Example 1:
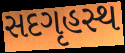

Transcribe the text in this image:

સદગૃહસ્થ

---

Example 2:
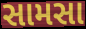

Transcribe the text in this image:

સામસા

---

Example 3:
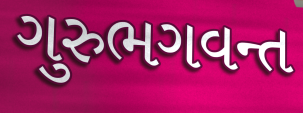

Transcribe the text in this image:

ગુરુભગવન્ત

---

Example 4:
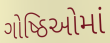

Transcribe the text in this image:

ગોષ્ઠિઓમાં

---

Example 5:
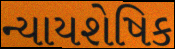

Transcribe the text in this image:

ન્યાયશેષિક